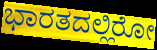
ಭಾರತದಲ್ಲಿರೋ